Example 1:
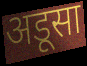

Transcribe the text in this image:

अडूसा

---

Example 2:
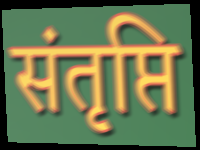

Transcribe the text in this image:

संतृप्ति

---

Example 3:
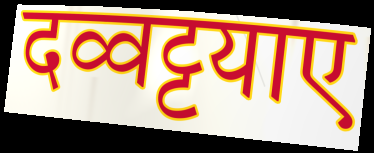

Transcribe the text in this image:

दव्वट्टयाए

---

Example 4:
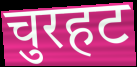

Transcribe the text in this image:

चुरहट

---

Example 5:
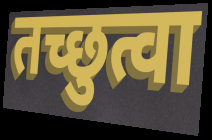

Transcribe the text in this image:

तच्छुत्वा